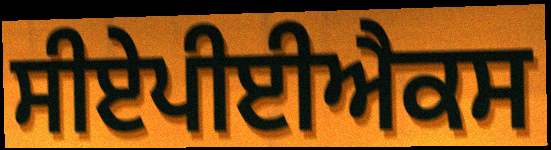
ਸੀਏਪੀਈਐਕਸ